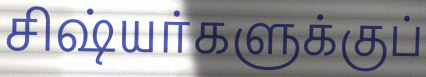
சிஷ்யர்களுக்குப்